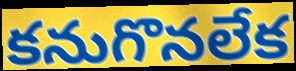
కనుగొనలేక